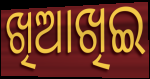
ଖିଆଖିଇ